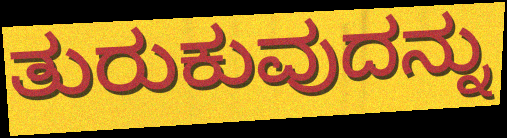
ತುರುಕುವುದನ್ನು